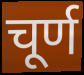
चूर्ण